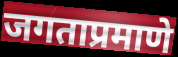
जगताप्रमाणे